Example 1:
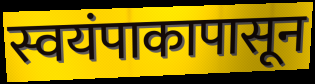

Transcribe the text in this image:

स्वयंपाकापासून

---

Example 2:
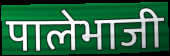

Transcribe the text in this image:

पालेभाजी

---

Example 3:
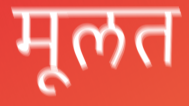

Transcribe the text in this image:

मूलत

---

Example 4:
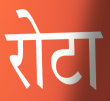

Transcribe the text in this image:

रोटा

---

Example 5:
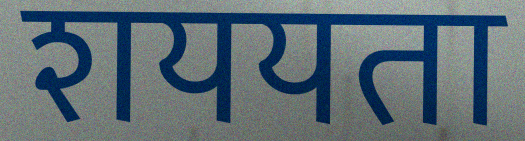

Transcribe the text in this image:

शययता